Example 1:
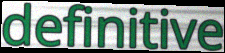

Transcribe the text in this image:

definitive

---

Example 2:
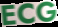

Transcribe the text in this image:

ECG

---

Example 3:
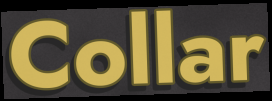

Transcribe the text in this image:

Collar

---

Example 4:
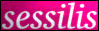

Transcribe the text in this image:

sessilis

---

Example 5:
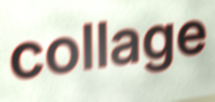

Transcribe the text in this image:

collage